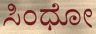
ಸಿಂಧೋ